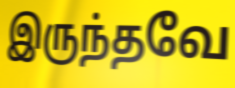
இருந்தவே